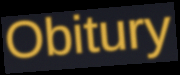
Obitury